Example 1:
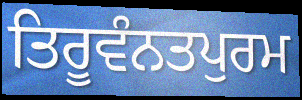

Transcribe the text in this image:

ਤਿਰੂਵੰਨਤਪੁਰਮ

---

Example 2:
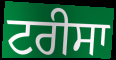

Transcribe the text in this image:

ਟਰੀਸਾ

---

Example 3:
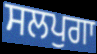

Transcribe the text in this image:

ਸਲਪੁਗਾ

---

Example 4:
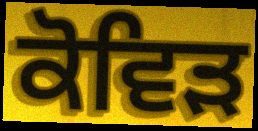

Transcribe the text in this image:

ਕੋਵਿਡ਼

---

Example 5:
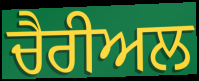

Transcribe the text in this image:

ਚੈਰੀਅਲ